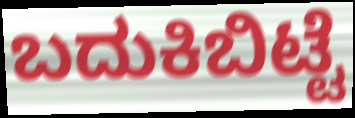
ಬದುಕಿಬಿಟ್ಟೆ